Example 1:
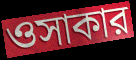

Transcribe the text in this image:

ওসাকার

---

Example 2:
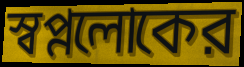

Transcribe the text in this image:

স্বপ্নলোকের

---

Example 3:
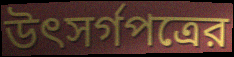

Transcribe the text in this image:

উৎসর্গপত্রের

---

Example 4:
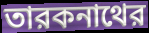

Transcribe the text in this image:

তারকনাথের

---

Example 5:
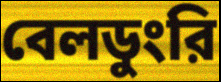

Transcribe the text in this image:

বেলডুংরি